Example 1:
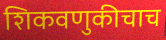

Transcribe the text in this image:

शिकवणुकीचाच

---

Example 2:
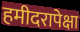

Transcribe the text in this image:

हमीदरापेक्षा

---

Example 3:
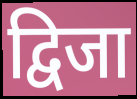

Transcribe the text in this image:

द्विजा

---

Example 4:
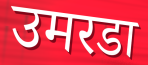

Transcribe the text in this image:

उमरडा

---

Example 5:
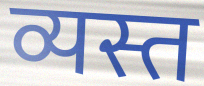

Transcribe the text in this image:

व्यस्त